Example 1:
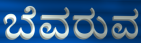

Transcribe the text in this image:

ಬೆವರುವ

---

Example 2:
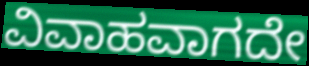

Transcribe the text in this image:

ವಿವಾಹವಾಗದೇ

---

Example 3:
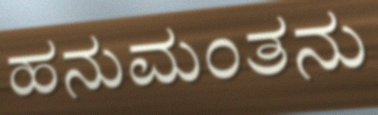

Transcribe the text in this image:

ಹನುಮಂತನು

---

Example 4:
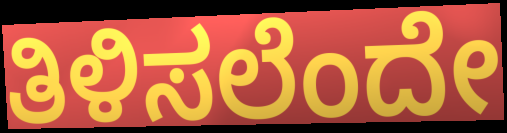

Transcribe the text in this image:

ತಿಳಿಸಲೆಂದೇ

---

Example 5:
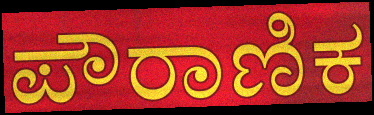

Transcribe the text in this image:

ಪೌರಾಣಿಕ